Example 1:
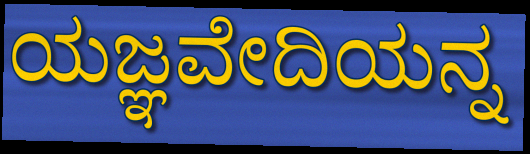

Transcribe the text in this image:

ಯಜ್ಞವೇದಿಯನ್ನ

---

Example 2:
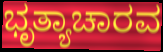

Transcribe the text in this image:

ಭೃತ್ಯಾಚಾರವ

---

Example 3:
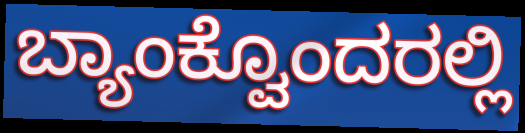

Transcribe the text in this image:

ಬ್ಯಾಂಕ್ವೊಂದರಲ್ಲಿ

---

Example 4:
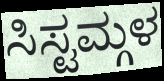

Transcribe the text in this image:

ಸಿಸ್ಟಮ್ಗಳ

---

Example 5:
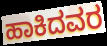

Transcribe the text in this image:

ಹಾಕಿದವರ